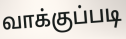
வாக்குப்படி